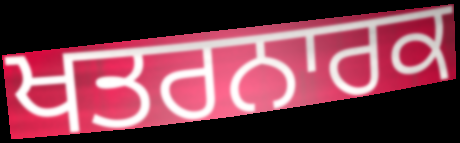
ਖਤਰਨਾਰਕ